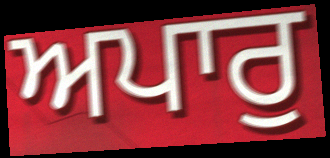
ਅਪਾਰੁ